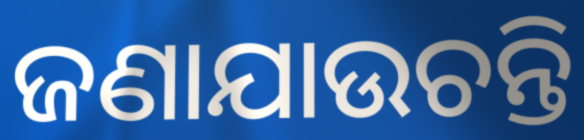
ଜଣାଯାଉଚନ୍ତି